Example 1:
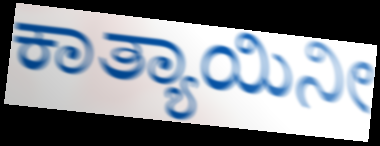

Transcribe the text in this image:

ಕಾತ್ಯಾಯಿನೀ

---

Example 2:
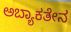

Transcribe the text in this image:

ಅಬ್ಯಾಕತೇನ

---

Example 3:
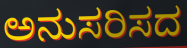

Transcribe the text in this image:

ಅನುಸರಿಸದ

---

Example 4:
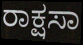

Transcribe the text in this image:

ರಾಕ್ಷಸಾ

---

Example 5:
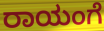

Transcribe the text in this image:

ರಾಯಂಗೆ